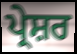
ਪ੍ਰੇਸ਼ਰ